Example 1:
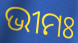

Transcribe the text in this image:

ଭୀମଃ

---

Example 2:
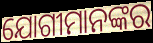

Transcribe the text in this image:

ଯୋଗୀମାନଙ୍କର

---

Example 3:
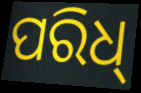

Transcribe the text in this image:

ପରିଧ୍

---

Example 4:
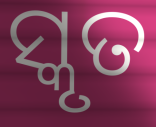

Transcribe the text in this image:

ସ୍କୃତ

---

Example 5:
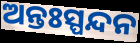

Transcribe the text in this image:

ଅନ୍ତଃସ୍ପନ୍ଦନ